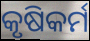
କୃଷିକର୍ମ